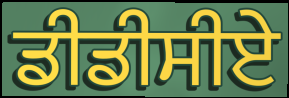
ਡੀਡੀਸੀਏ